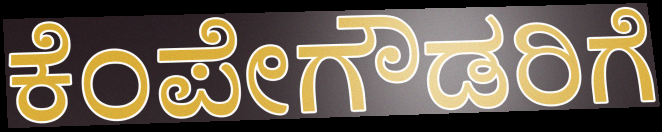
ಕೆಂಪೇಗೌಡರಿಗೆ